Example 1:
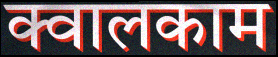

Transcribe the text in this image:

क्वालकाम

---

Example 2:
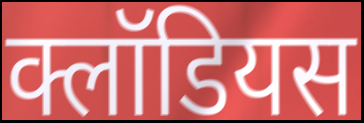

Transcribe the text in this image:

क्लॉडियस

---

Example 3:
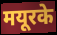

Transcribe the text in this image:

मयूरके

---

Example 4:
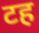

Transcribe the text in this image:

टह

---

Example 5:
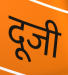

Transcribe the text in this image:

दूजी